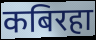
कबिरहा